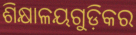
ଶିକ୍ଷାଳୟଗୁଡ଼ିକର